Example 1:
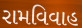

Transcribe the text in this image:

રામવિવાહ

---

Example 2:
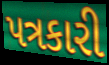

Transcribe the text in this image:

પત્રકારી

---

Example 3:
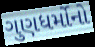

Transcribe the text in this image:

ગુણધર્મોનો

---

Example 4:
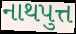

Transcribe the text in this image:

નાથપુત્ત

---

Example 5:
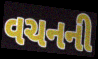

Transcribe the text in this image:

વચનની